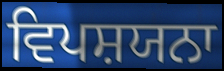
ਵਿਪਸ਼ਯਨਾ